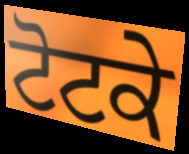
ਟੋਟਕੇ